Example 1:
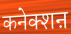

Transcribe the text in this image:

कनेक्शऩ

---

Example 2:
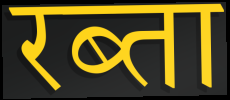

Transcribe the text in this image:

रब्ता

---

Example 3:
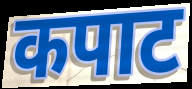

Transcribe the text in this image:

कपाट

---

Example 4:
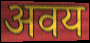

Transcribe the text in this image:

अवय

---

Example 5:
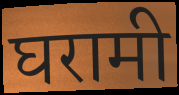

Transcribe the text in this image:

घरामी